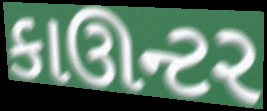
કાઊન્ટર